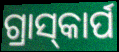
ଗ୍ରାସ୍‌କାର୍ପ